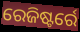
ରେଜିଷ୍ଟର୍ରେ